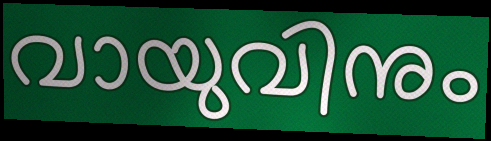
വായുവിനും